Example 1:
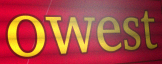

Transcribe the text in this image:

owest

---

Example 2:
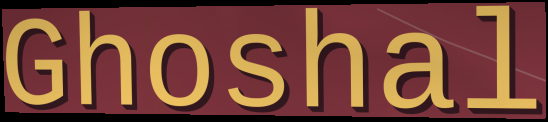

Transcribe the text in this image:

Ghoshal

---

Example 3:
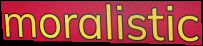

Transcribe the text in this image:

moralistic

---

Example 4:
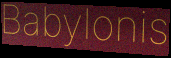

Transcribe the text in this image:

Babylonis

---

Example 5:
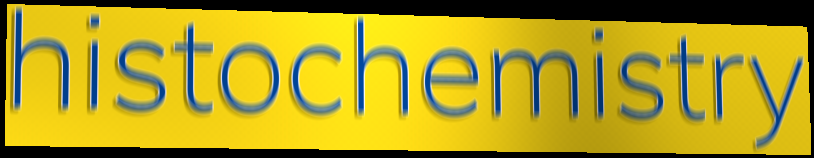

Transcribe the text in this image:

histochemistry